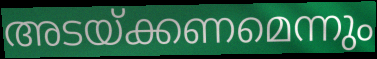
അടയ്ക്കണമെന്നും